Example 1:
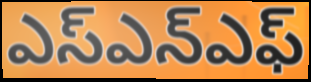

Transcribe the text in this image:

ఎస్ఎన్ఎఫ్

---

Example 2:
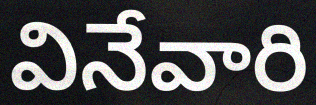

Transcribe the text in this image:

వినేవారి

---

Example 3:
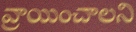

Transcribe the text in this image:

వ్రాయించాలని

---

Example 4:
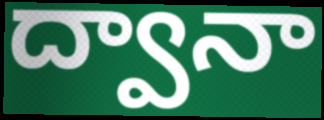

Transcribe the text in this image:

ద్వానా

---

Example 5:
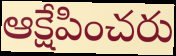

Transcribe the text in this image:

ఆక్షేపించరు